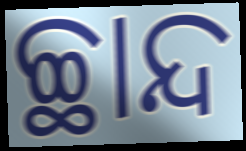
ଚ୍ଛାନ୍ଦ